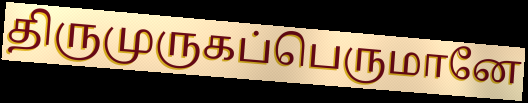
திருமுருகப்பெருமானே